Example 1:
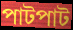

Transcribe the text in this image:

পাটপাট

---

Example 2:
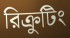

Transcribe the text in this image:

রিক্রুটিং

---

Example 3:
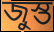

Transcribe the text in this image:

জুস্ত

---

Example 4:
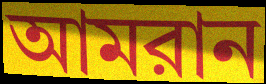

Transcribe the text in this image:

আমরান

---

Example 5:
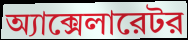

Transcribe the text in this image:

অ্যাক্সেলারেটর